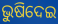
ଭୁଷିଦେଇ